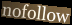
nofollow